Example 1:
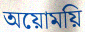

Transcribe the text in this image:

অয়োময়ি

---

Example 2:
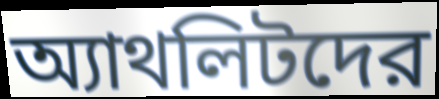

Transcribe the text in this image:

অ্যাথলিটদের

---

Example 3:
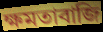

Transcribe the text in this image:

ক্ষমতাবাজি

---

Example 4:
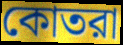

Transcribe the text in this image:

কোতরা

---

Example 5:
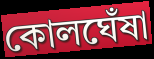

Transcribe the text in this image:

কোলঘেঁষা